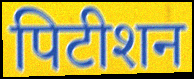
पिटीशन